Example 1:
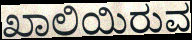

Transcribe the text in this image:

ಖಾಲಿಯಿರುವ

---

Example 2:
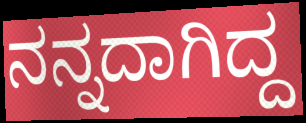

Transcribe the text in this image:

ನನ್ನದಾಗಿದ್ದ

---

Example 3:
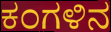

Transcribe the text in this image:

ಕಂಗಳಿನ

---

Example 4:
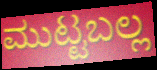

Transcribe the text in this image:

ಮುಟ್ಟಬಲ್ಲ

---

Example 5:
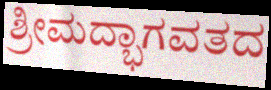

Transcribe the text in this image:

ಶ್ರೀಮದ್ಭಾಗವತದ